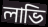
লাভি